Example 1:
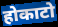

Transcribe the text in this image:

होकाटो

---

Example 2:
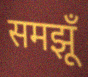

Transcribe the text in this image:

समझूँ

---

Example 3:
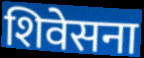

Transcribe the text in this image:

शिवेसना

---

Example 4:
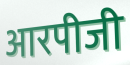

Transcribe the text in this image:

आरपीजी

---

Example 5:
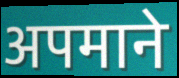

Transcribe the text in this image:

अपमाने